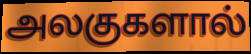
அலகுகளால்